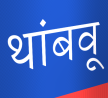
थांबवू